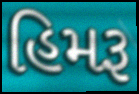
હિમરૂ